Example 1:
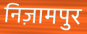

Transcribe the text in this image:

निज़ामपुर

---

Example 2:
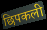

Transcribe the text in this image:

छिपकली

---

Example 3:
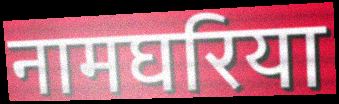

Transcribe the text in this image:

नामघरिया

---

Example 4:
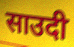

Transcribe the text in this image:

साउदी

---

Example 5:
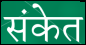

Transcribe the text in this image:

संकेत